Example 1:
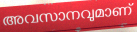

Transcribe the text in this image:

അവസാനവുമാണ്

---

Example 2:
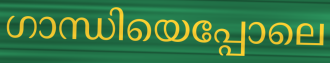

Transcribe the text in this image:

ഗാന്ധിയെപ്പോലെ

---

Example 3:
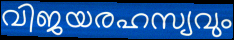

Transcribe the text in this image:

വിജയരഹസ്യവും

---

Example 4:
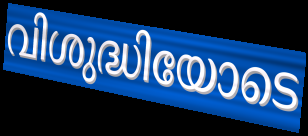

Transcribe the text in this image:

വിശുദ്ധിയോടെ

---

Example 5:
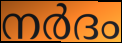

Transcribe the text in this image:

നർദം